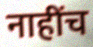
नाहींच